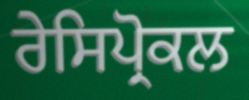
ਰੇਸਿਪ੍ਰੋਕਲ